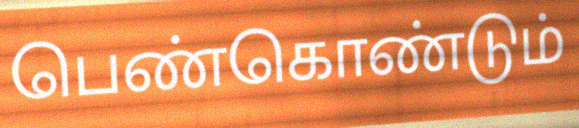
பெண்கொண்டும்